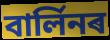
বাৰ্লিনৰ